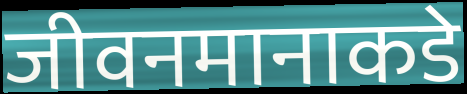
जीवनमानाकडे